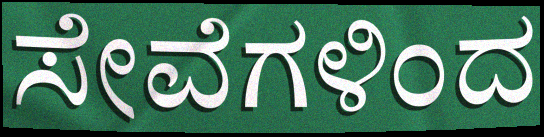
ಸೇವೆಗಳಿಂದ